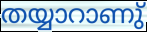
തയ്യാറാണു്